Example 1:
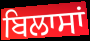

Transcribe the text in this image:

ਬਿਲਾਸਾਂ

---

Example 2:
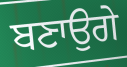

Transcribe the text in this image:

ਬਣਾਉਗੇ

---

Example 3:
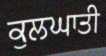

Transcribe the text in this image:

ਕੁਲਘਾਤੀ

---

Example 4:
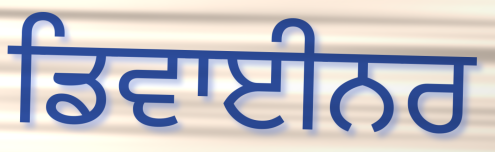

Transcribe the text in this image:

ਡਿਵਾਈਨਰ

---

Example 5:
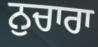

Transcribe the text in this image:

ਨੁਚਾਰਾ